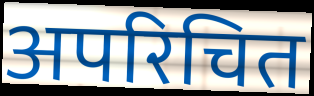
अपरिचित